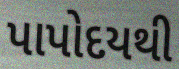
પાપોદયથી